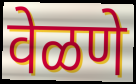
वेळणे